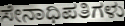
ಸೇನಾಧಿಪತಿಗಳು